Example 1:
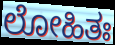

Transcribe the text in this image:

ಲೋಹಿತಃ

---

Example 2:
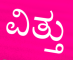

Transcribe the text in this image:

ವಿತ್ತು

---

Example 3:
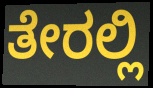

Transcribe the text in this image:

ತೇರಲ್ಲಿ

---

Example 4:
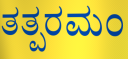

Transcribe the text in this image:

ತತ್ಪರಮಂ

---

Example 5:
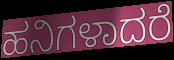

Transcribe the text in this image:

ಹನಿಗಳಾದರೆ